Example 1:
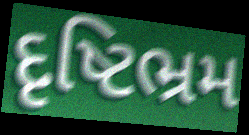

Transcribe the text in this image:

દૃષ્ટિભ્રમ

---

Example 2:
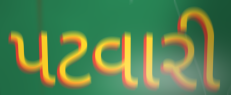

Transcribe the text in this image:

પટવારી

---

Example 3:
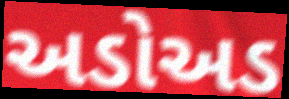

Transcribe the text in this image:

અડોઅડ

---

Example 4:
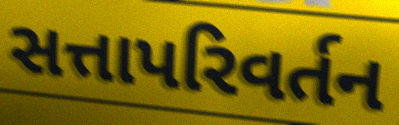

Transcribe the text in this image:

સત્તાપરિવર્તન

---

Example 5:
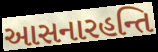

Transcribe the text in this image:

આસનારહન્તિ